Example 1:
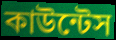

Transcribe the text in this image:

কাউন্টেস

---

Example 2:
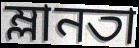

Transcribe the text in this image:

ম্লানতা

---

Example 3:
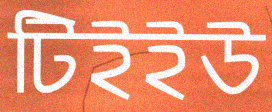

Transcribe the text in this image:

টিইইউ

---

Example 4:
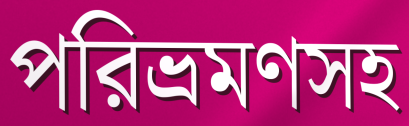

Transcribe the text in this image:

পরিভ্রমণসহ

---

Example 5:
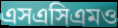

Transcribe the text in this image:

এসএসিএমও